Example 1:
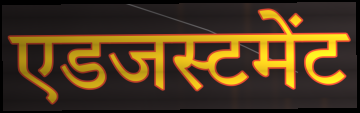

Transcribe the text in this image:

एडजस्टमेंट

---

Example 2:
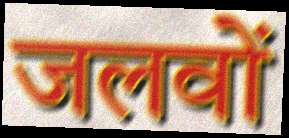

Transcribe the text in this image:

जलवों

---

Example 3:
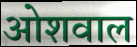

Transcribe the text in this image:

ओशवाल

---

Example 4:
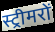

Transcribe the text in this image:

स्ट्रीमरों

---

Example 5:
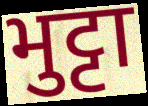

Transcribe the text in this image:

भुट्टा